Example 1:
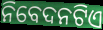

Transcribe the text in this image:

ନିବେଦନଟିଏ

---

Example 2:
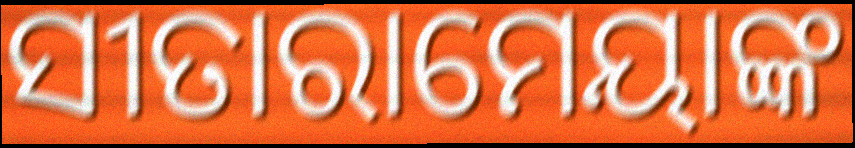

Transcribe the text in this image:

ସୀତାରାମେୟାଙ୍କ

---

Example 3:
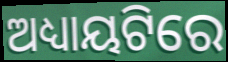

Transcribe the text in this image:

ଅଧ୍ୟାୟଟିରେ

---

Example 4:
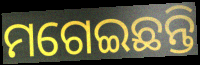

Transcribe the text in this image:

ମଗେଇଛନ୍ତି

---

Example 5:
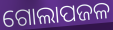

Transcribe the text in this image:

ଗୋଲାପଜଳ